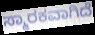
ಸ್ಮಾರಕವಾಗಿದೆ